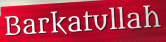
Barkatullah